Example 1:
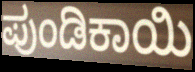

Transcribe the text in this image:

ಪುಂಡಿಕಾಯಿ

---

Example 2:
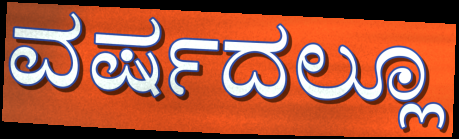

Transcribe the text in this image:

ವರ್ಷದಲ್ಲೂ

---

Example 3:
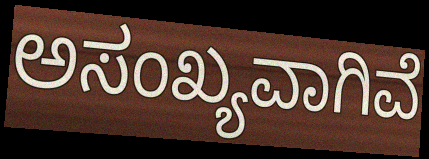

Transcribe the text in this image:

ಅಸಂಖ್ಯವಾಗಿವೆ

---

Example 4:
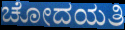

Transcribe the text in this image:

ಚೋದಯತಿ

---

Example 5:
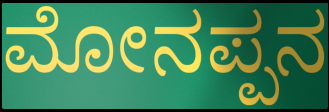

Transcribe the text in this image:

ಮೋನಪ್ಪನ